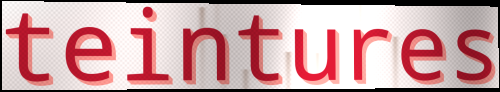
teintures